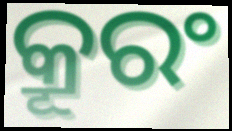
କ୍ରୂରଂ